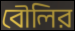
বৌলির